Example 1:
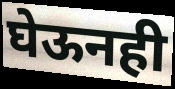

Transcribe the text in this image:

घेऊनही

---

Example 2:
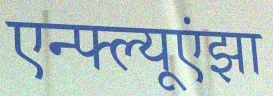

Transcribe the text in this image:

एन्फ्ल्यूएंझा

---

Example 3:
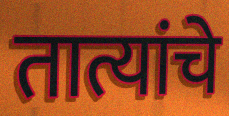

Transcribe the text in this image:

तात्यांचे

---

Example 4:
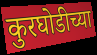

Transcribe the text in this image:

कुरघोडीच्या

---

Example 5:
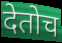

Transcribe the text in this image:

देतोच